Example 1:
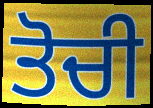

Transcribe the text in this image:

ਤੋਚੀ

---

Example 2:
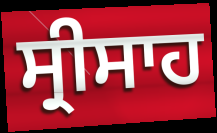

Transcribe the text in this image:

ਸ੍ਰੀਸਾਹ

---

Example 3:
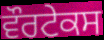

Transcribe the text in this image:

ਵੌਰਟੇਕਸ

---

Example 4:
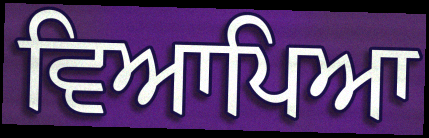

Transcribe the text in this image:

ਵਿਆਪਿਆ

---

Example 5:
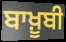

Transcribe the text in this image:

ਬਾਖ਼ੂਬੀ